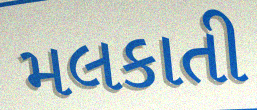
મલકાતી